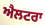
ਐਲਟਰਾ